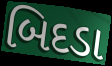
બિદડા